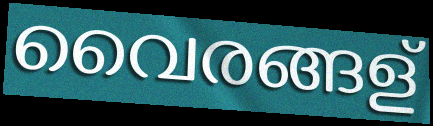
വൈരങ്ങള്